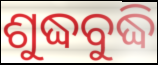
ଶୁଦ୍ଧବୁଦ୍ଧି